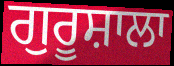
ਗੁਰੂਸ਼ਾਲਾ